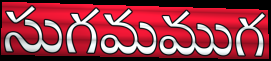
సుగమముగ